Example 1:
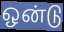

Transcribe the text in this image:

ஒன்டு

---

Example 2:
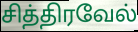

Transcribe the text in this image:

சித்திரவேல்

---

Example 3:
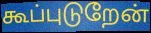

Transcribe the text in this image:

கூப்புடுறேன்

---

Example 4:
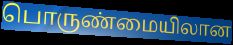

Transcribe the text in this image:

பொருண்மையிலான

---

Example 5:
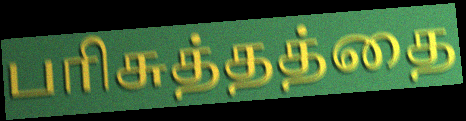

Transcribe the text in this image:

பரிசுத்தத்தை